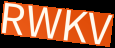
RWKV